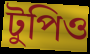
টুপিও